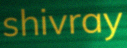
shivray